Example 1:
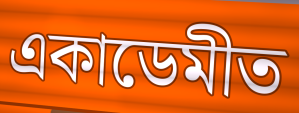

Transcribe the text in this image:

একাডেমীত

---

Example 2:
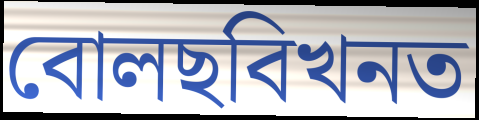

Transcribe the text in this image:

বোলছবিখনত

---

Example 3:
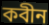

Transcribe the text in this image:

কবীন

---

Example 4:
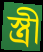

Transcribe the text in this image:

স্ত্ৰী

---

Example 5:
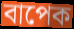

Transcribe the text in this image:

বাপেক